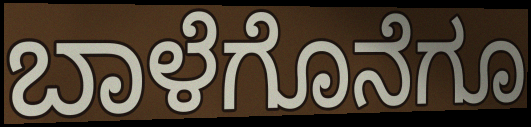
ಬಾಳೆಗೊನೆಗೂ